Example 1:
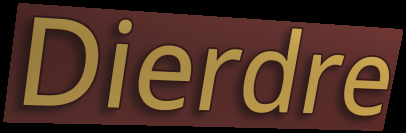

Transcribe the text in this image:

Dierdre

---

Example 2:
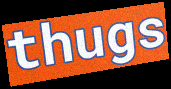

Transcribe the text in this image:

thugs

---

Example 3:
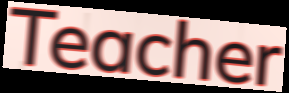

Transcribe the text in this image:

Teacher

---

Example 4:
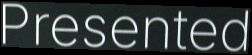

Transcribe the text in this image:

Presented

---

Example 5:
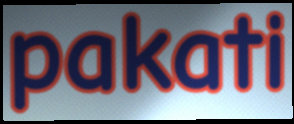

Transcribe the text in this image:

pakati